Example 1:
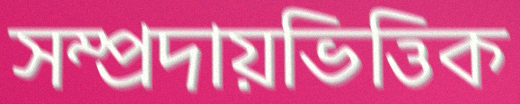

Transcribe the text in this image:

সম্প্রদায়ভিত্তিক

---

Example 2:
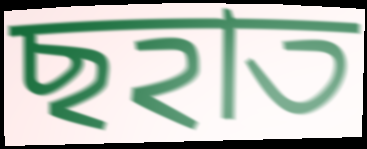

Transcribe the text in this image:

ছহাত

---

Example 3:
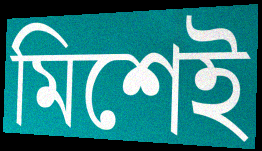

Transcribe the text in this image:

মিশেই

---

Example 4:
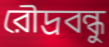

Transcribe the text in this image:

রৌদ্রবন্ধু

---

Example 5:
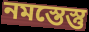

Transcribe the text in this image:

নমস্তেস্তু